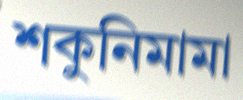
শকুনিমামা